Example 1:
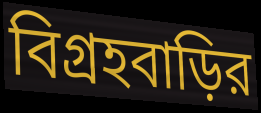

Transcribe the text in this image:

বিগ্রহবাড়ির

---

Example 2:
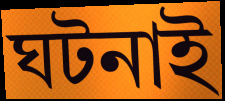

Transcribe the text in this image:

ঘটনাই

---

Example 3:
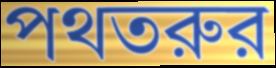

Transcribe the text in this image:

পথতরুর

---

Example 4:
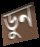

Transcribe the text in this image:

ডুন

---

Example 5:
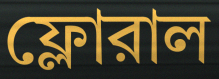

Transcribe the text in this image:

ফ্লোরাল